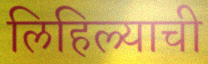
लिहिल्याची